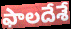
ఫాలదేశే